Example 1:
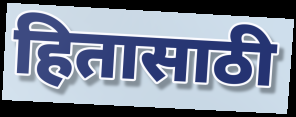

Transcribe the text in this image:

हितासाठी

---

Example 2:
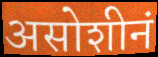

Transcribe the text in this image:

असोशीनं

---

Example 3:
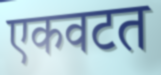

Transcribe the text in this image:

एकवटत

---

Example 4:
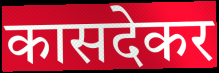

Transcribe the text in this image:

कासदेकर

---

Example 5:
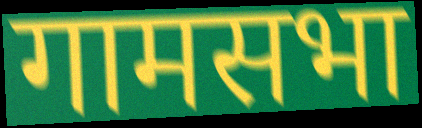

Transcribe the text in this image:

गामसभा